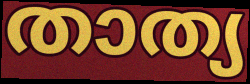
താത്യ